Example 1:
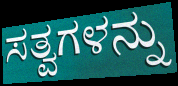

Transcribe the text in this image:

ಸತ್ವಗಳನ್ನು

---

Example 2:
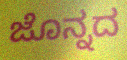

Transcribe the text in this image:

ಜೊನ್ನದ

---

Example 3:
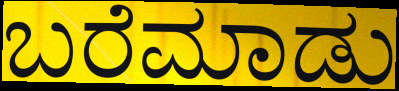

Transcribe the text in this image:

ಬರೆಮಾಡು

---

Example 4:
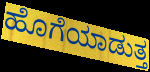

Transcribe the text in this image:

ಹೊಗೆಯಾಡುತ್ತ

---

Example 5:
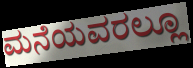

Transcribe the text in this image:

ಮನೆಯವರಲ್ಲೂ